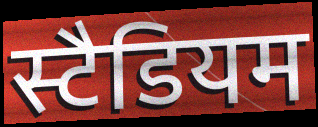
स्टैडियम